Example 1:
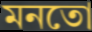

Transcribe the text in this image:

মনতো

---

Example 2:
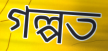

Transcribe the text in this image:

গল্পত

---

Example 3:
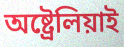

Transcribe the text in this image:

অষ্ট্ৰেলিয়াই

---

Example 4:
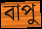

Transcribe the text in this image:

বাপু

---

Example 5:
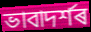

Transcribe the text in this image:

ভাবাদৰ্শৰ